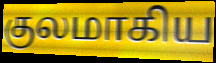
குலமாகிய